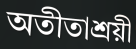
অতীতাশ্রয়ী